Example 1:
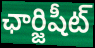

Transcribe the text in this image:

ఛార్జిషీట్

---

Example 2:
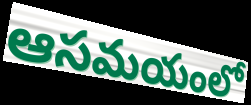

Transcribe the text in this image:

ఆసమయంలో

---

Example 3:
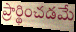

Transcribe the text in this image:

ప్రార్థించడమే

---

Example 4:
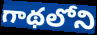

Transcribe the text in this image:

గాథలోని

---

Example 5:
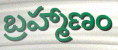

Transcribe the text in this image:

బ్రహ్మాణం